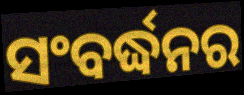
ସଂବର୍ଦ୍ଧନର